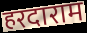
हरदाराम